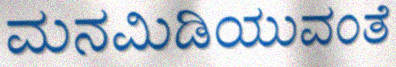
ಮನಮಿಡಿಯುವಂತೆ